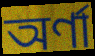
অর্ণা